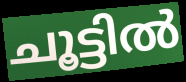
ചൂട്ടിൽ